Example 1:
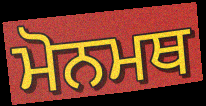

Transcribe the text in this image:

ਮੋਨਮਥ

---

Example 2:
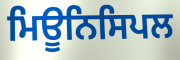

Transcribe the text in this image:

ਮਿਊਨਿਸਿਪਲ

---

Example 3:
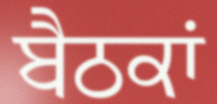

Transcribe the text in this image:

ਬੈਠਕਾਂ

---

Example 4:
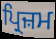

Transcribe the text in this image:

ਪ੍ਰਿਜ਼ਮ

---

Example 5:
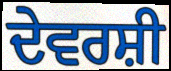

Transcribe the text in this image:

ਦੇਵਰਸ਼ੀ